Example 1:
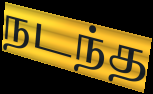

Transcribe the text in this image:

நடந்த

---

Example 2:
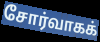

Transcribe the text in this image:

சோர்வாகக்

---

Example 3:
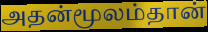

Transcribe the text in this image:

அதன்மூலம்தான்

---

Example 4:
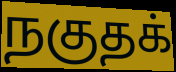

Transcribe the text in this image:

நகுதக்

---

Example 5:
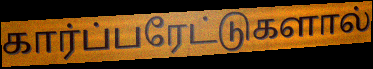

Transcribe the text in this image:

கார்ப்பரேட்டுகளால்